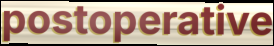
postoperative